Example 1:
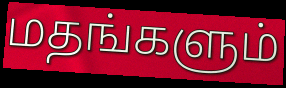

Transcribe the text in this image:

மதங்களும்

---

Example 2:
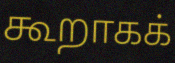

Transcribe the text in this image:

கூறாகக்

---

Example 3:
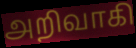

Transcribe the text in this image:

அறிவாகி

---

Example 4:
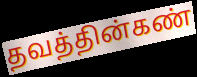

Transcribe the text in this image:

தவத்தின்கண்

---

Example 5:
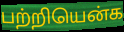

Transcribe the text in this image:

பற்றியென்க